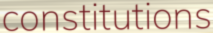
constitutions